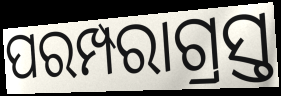
ପରମ୍ପରାଗ୍ରସ୍ତ